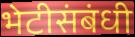
भेटीसंबंधी